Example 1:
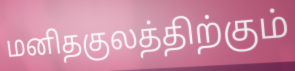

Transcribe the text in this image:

மனிதகுலத்திற்கும்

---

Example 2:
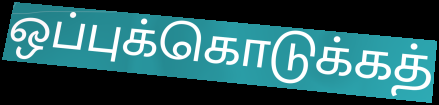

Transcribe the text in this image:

ஒப்புக்கொடுக்கத்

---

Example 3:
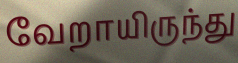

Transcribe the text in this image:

வேறாயிருந்து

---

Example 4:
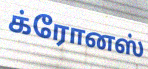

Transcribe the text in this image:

க்ரோனஸ்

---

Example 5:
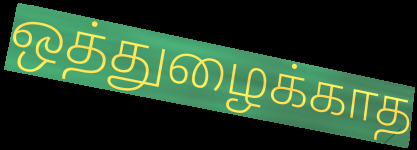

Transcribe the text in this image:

ஒத்துழைக்காத